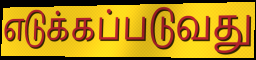
எடுக்கப்படுவது